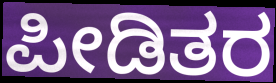
ಪೀಡಿತರ